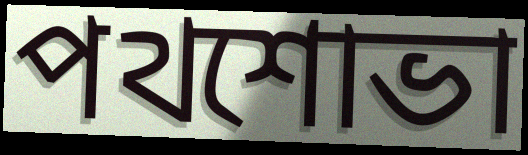
পথশোভা